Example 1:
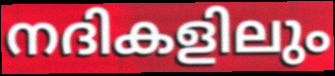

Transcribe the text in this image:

നദികളിലും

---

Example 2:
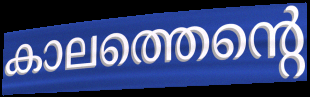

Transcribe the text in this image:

കാലത്തെന്റെ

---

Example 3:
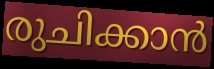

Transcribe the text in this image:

രുചിക്കാൻ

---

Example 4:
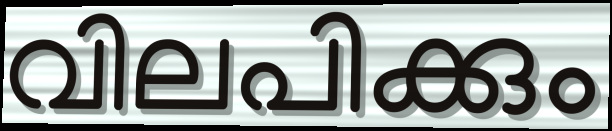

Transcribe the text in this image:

വിലപിക്കും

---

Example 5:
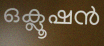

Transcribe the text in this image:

ഒക്ലൂഷൻ